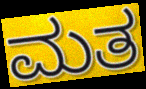
ಮತ